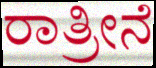
ರಾತ್ರೀನೆ